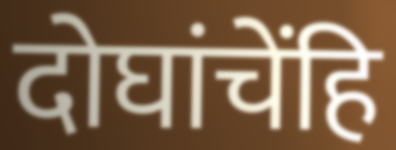
दोघांचेंहि